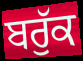
ਬਰੁੱਕ